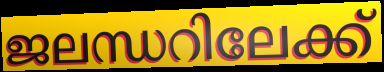
ജലന്ധറിലേക്ക്